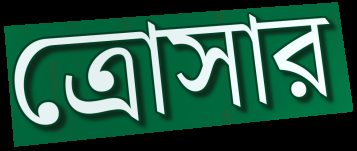
ত্রোসার